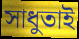
সাধুতাই